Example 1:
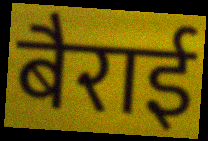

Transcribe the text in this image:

बैराई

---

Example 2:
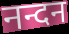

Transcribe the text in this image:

नन्‍दन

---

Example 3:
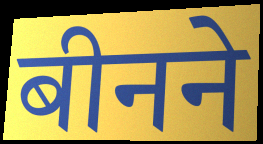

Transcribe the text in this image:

बीनने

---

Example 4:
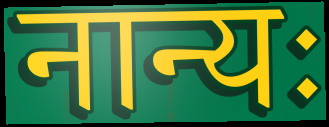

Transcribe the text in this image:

नान्यः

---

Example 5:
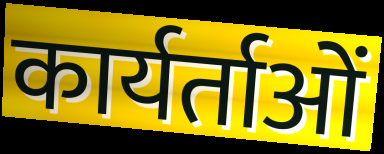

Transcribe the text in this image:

कार्यर्ताओं